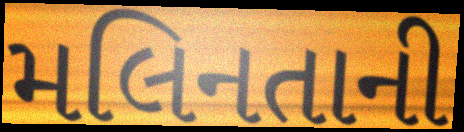
મલિનતાની